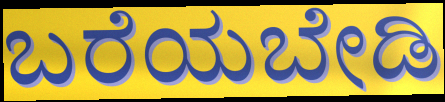
ಬರೆಯಬೇಡಿ